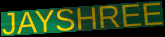
JAYSHREE